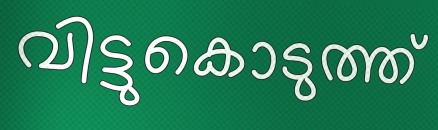
വിട്ടുകൊടുത്ത്